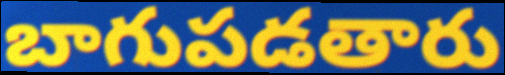
బాగుపడతారు